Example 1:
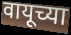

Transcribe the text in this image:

वायूच्या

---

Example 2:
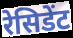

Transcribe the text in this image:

रेसिडेंट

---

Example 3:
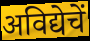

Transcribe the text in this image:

अविद्येचें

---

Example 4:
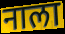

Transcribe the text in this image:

नाला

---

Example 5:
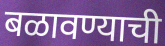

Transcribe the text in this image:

बळावण्याची